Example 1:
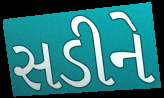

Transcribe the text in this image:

સડીને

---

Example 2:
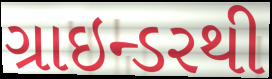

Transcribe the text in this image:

ગ્રાઇન્ડરથી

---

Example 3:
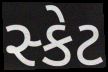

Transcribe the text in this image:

સ્કેટ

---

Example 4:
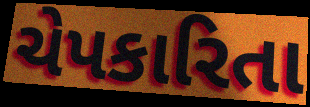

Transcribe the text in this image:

ચેપકારિતા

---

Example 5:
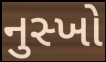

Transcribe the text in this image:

નુસ્ખો